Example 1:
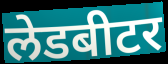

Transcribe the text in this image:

लेडबीटर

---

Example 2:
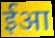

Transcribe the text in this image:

ईआ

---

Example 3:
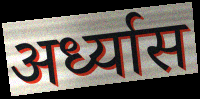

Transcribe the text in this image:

अर्ध्यास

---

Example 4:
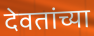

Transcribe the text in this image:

देवतांच्या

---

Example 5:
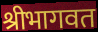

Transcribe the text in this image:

श्रीभागवत